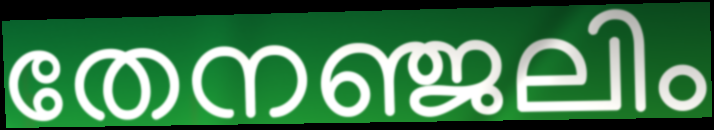
തേനഞ്ജലിം